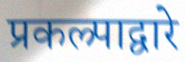
प्रकल्पाद्वारे